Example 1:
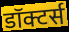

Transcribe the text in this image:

डॉक्टर्स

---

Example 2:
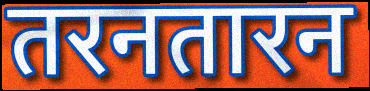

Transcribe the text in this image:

तरनतारन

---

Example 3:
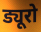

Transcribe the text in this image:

ड्यूरो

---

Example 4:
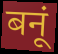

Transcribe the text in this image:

बनूं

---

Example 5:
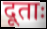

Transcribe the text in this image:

दूताः